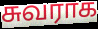
சுவராக